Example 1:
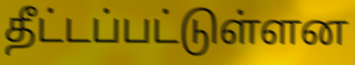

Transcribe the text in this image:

தீட்டப்பட்டுள்ளன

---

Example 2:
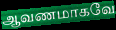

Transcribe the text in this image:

ஆவணமாகவே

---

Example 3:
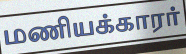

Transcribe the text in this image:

மணியக்காரர்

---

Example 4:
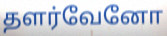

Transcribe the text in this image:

தளர்வேனோ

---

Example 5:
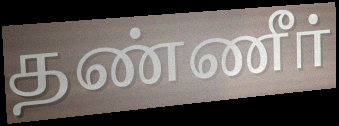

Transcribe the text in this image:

தண்ணீர்